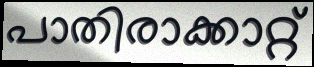
പാതിരാക്കാറ്റ്